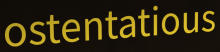
ostentatious